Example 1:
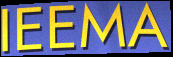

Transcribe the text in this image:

IEEMA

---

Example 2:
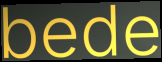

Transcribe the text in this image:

bede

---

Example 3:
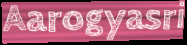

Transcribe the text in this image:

Aarogyasri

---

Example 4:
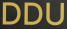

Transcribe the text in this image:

DDU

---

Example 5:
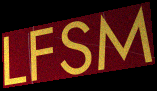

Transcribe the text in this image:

LFSM